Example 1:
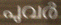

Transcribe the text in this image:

പുവർ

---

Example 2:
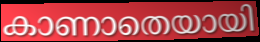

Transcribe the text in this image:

കാണാതെയായി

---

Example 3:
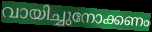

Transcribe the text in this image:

വായിച്ചുനോക്കണം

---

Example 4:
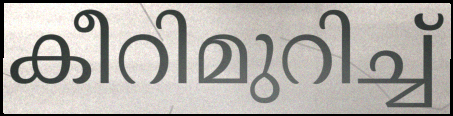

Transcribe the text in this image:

കീറിമുറിച്ച്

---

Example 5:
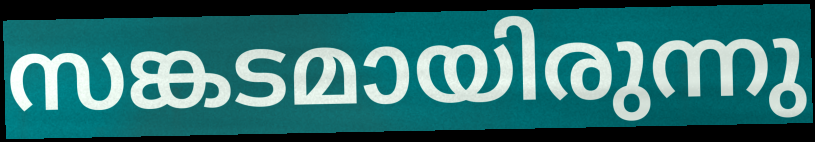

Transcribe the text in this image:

സങ്കടമായിരുന്നു